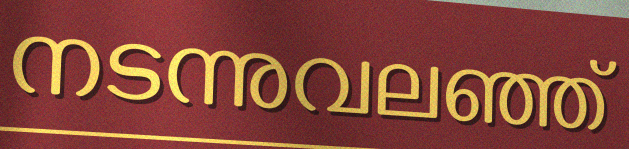
നടന്നുവലഞ്ഞ്